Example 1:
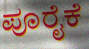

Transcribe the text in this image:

ಪೂರೈಕೆ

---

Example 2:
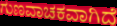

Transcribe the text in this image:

ಗುಣವಾಚಕವಾಗಿದೆ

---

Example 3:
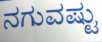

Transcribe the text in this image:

ನಗುವಷ್ಟು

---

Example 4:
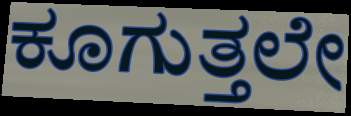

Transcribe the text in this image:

ಕೂಗುತ್ತಲೇ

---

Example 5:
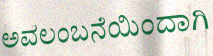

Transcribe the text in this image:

ಅವಲಂಬನೆಯಿಂದಾಗಿ